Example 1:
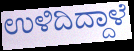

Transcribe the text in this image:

ಉಳಿದಿದ್ದಾಳೆ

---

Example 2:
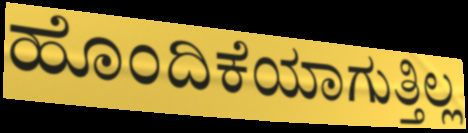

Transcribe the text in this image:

ಹೊಂದಿಕೆಯಾಗುತ್ತಿಲ್ಲ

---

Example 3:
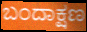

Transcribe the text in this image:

ಬಂದಾಕ್ಷಣ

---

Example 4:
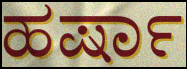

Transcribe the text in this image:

ಹರ್ಷಾ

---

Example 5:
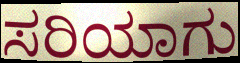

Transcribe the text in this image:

ಸರಿಯಾಗು